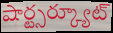
షార్ట్సర్క్యూట్